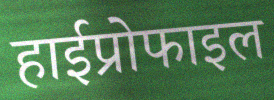
हाईप्रोफाइल